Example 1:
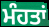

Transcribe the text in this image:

ਮੰਹਤਾਂ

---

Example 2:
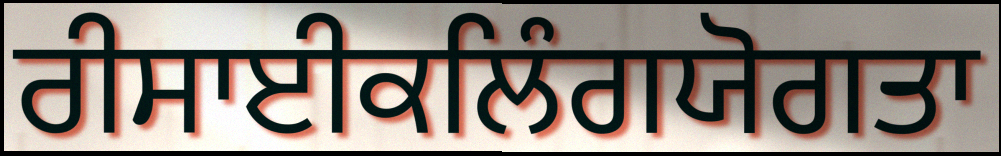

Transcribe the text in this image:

ਰੀਸਾਈਕਲਿੰਗਯੋਗਤਾ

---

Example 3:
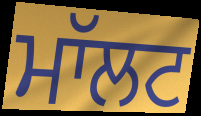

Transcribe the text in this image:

ਮਾੱਲਟ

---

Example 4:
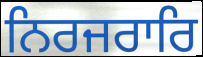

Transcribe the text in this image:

ਨਿਰਜਰਾਰਿ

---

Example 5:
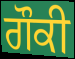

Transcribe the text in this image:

ਗੌਕੀ